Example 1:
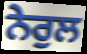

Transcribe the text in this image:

ਨੇਰੁਲ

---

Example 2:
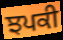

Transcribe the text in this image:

ਝਪਕੀ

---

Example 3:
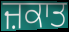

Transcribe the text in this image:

ਜ਼ਕਾਤ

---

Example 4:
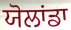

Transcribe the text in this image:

ਯੋਲਾਂਡਾ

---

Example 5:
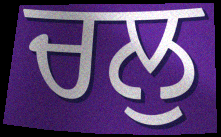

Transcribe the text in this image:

ਚਲੁ